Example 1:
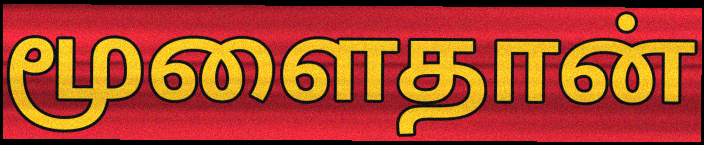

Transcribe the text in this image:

மூளைதான்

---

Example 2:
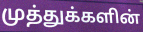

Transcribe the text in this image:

முத்துக்களின்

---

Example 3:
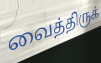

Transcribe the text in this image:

வைத்திருக்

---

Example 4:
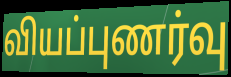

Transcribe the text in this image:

வியப்புணர்வு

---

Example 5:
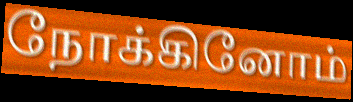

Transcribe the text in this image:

நோக்கினோம்